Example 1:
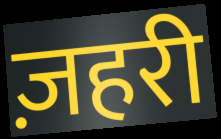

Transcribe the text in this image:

ज़हरी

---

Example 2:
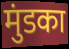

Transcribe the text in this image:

मुंडका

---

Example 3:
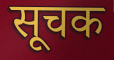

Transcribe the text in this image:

सूचक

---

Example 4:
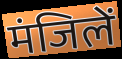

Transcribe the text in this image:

मंजिलें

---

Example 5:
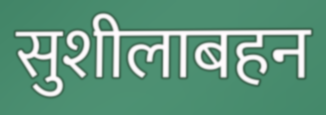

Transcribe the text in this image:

सुशीलाबहन